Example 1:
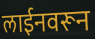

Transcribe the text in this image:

लाईनवरून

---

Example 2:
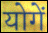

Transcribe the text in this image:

योगें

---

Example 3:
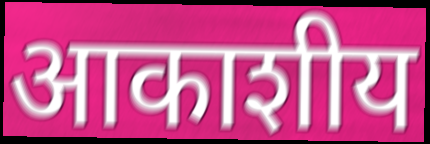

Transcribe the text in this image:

आकाशीय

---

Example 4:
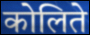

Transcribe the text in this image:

कोलिते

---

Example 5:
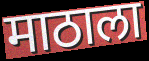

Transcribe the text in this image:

माठाला